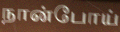
நான்போய்